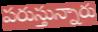
పరుస్తున్నారు